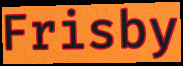
Frisby